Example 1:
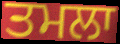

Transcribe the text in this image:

ਤਮਲਾ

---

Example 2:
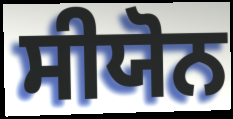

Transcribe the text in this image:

ਸੀਯੋਨ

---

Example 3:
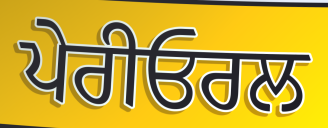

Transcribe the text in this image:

ਪੇਰੀਓਰਲ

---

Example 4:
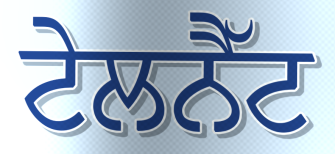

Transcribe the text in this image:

ਟੇਲਨੈੱਟ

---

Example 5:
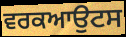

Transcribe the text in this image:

ਵਰਕਆਉਟਸ